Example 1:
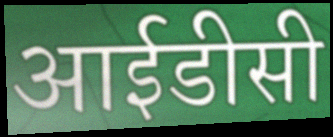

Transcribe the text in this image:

आईडीसी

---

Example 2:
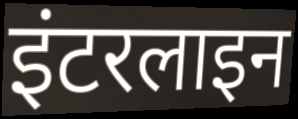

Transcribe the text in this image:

इंटरलाइन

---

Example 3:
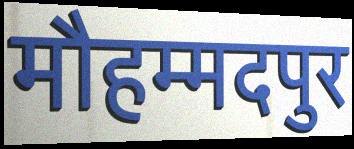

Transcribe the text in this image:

मौहम्मदपुर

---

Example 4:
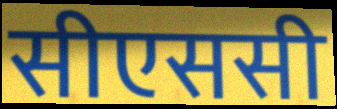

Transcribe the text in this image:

सीएससी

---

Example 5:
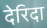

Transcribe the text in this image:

देरिदा